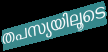
തപസ്യയിലൂടെ